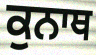
ਕੁਨਾਥ